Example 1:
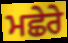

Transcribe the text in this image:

ਮਛੇਰੇ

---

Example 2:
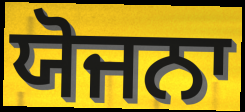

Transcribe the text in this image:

ਯੋਜਨਾ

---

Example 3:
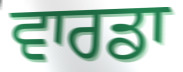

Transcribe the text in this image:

ਵਾਰਡਾ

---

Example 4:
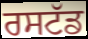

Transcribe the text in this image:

ਰਸਟੱਡ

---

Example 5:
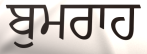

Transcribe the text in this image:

ਬੁਮਰਾਹ